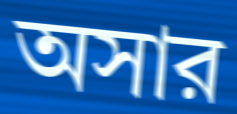
অসার